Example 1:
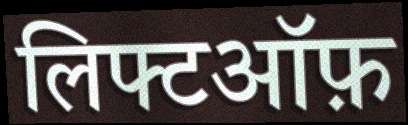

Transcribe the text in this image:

लिफ्टऑफ़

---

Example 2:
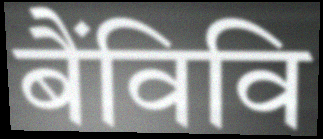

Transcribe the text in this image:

बैंविवि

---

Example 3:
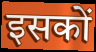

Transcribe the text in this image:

इसकों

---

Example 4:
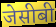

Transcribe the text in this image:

जेसीबी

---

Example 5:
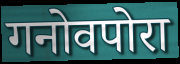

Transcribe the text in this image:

गनोवपोरा